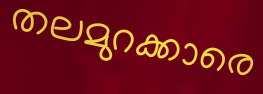
തലമുറക്കാരെ